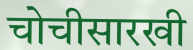
चोचीसारखी